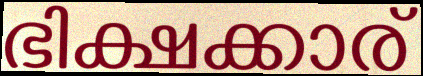
ഭിക്ഷക്കാര്